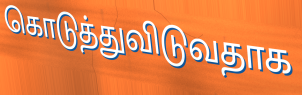
கொடுத்துவிடுவதாக